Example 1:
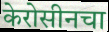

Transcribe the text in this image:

केरोसीनचा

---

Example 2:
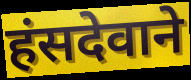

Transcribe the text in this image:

हंसदेवाने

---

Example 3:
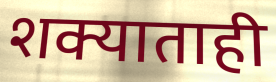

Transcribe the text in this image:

शक्याताही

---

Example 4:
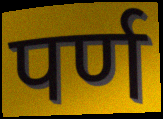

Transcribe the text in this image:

पर्ण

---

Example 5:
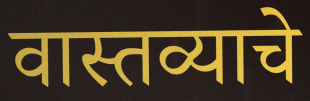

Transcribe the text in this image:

वास्तव्याचे